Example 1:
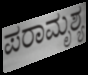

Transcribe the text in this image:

ಪರಾಮೃಶ್ಯ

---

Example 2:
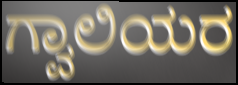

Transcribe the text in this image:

ಗ್ವಾಲಿಯರ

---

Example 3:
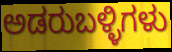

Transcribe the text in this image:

ಅಡರುಬಳ್ಳಿಗಳು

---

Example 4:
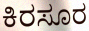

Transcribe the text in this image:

ಕಿರಸೂರ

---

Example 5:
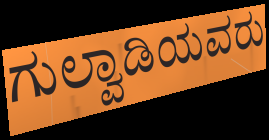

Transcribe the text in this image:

ಗುಲ್ವಾಡಿಯವರು